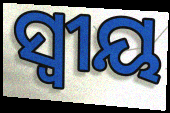
ସ୍ୱୀୟ